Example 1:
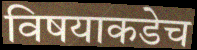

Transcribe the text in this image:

विषयाकडेच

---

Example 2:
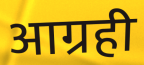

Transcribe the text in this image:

आग्रही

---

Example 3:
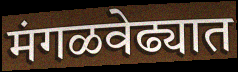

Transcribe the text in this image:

मंगळवेढ्यात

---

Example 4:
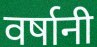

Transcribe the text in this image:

वर्षानी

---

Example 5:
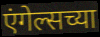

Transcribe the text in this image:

एंगेल्सच्या